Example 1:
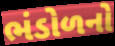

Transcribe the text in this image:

ભંડોળનો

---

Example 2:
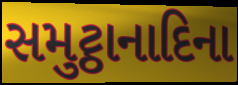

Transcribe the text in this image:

સમુટ્ઠાનાદિના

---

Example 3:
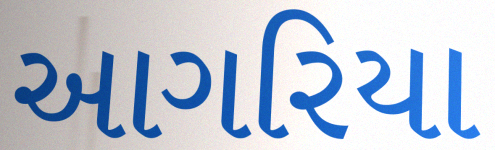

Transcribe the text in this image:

આગરિયા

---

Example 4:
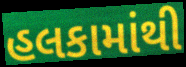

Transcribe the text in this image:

હલકામાંથી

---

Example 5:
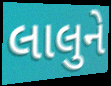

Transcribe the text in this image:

લાલુને